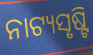
ନାଟ୍ୟସୃଷ୍ଟି